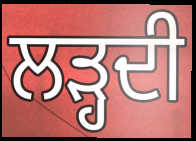
ਲੜ੍ਹਦੀ